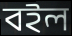
বইল